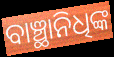
ବାଞ୍ଛାନିଧିଙ୍କ